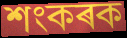
শংকৰক